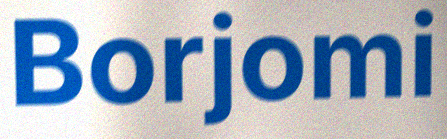
Borjomi